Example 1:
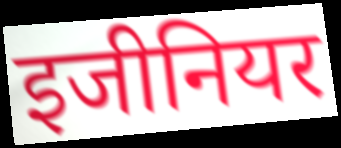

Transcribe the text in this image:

इजीनियर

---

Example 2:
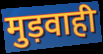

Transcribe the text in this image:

मुड़वाही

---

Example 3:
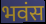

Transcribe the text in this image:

भवंस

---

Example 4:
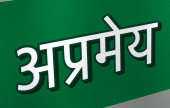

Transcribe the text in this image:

अप्रमेय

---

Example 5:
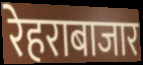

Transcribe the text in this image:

रेहराबाजार